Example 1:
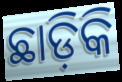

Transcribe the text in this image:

ଛାଡ଼ିକି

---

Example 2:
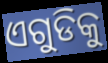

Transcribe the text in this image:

ଏଗୁଡିକୁ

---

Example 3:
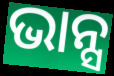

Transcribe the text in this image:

ଭାନ୍ସ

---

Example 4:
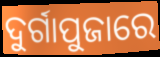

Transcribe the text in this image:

ଦୁର୍ଗାପୁଜାରେ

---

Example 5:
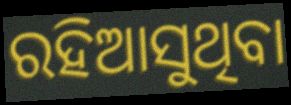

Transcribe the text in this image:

ରହିଆସୁଥିବା